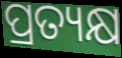
ପ୍ରତ୍ୟକ୍ଷ